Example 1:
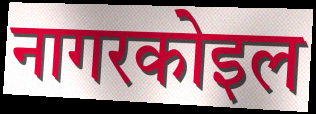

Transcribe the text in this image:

नागरकोइल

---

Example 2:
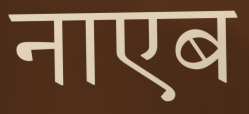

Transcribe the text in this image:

नाएब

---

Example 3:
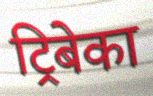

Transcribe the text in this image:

ट्रिबेका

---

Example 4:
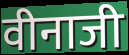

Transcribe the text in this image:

वीनाजी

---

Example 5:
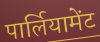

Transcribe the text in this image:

पार्लियामेंट